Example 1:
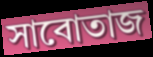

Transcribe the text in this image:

সাবোতাজ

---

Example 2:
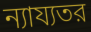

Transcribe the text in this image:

ন্যায্যতর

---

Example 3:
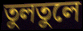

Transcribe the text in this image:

তুলতুলে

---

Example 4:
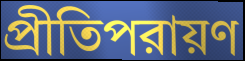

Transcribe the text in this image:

প্রীতিপরায়ণ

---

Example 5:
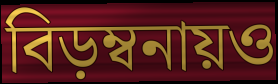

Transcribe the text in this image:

বিড়ম্বনায়ও